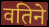
वतिने